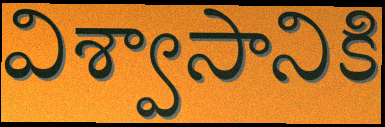
విశ్వాసానికి